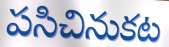
పసిచినుకట